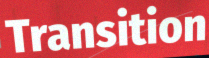
Transition